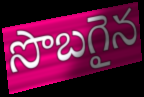
సొబగైన